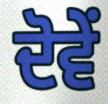
ਦੋਵੇਂ